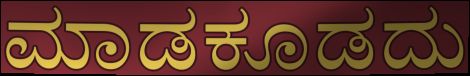
ಮಾಡಕೂಡದು